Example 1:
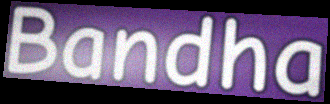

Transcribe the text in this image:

Bandha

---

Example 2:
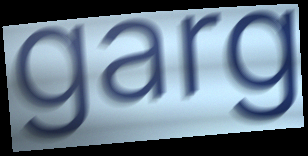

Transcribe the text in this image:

garg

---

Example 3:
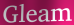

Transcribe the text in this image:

Gleam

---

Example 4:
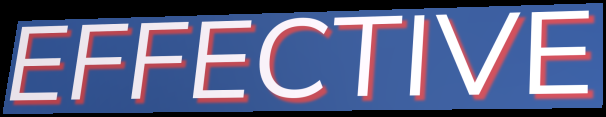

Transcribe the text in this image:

EFFECTIVE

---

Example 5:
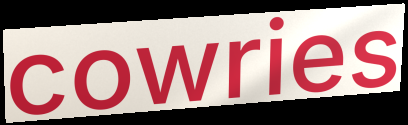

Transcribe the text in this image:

cowries